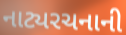
નાટ્યરચનાની